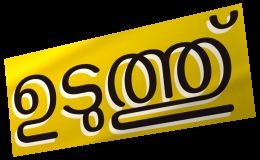
ഉടുത്തു്